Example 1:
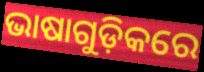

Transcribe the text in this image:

ଭାଷାଗୁଡ଼ିକରେ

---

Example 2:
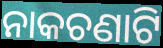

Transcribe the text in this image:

ନାକଚଣାଟି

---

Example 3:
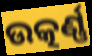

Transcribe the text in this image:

ଉତ୍କର୍ଣ୍ଣ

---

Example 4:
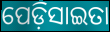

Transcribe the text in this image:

ପେଡ଼ିସାଇତା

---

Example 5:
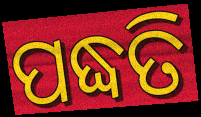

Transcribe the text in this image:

ପଦ୍ଧତି